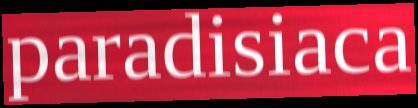
paradisiaca